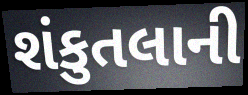
શંકુતલાની